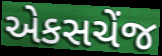
એકસચેંજ